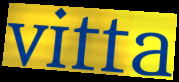
vitta